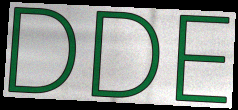
DDE